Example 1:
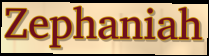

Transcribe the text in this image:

Zephaniah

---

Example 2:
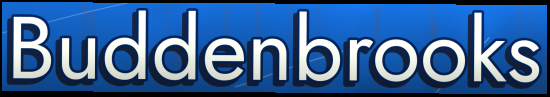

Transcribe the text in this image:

Buddenbrooks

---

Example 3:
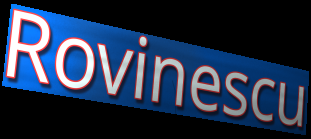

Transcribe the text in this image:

Rovinescu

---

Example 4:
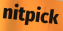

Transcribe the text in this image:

nitpick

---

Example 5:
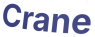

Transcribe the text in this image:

Crane